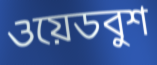
ওয়েডবুশ